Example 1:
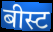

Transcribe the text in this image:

बीस्ट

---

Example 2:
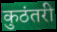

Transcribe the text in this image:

कुठंतरी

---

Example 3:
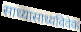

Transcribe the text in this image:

साध्यासाध्यविवेक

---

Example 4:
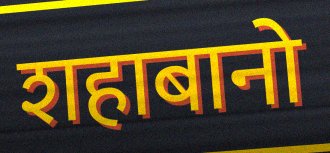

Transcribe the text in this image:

शहाबानो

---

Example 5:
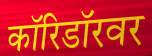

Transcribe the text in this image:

कॉरिडॉरवर